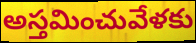
అస్తమించువేళకు